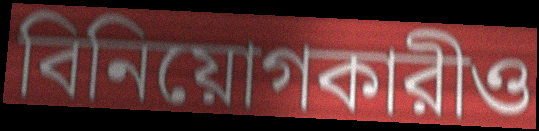
বিনিয়োগকারীও